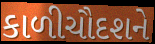
કાળીચૌદશને